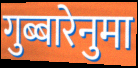
गुब्बारेनुमा